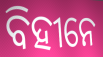
ବିହୀନେ